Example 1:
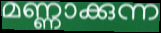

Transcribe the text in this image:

മണ്ണാക്കുന്ന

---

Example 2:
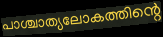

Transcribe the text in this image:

പാശ്ചാത്യലോകത്തിന്റെ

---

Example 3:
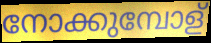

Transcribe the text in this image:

നോക്കുമ്പോള്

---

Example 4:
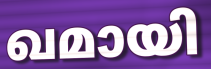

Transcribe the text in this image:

ഖമായി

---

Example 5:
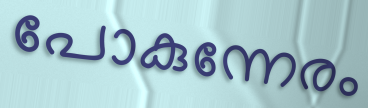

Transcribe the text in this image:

പോകുന്നേരം